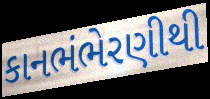
કાનભંભેરણીથી